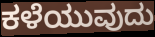
ಕಳೆಯುವುದು